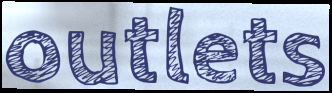
outlets